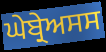
ਘੇਬ੍ਰੇਅਸਸ